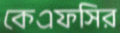
কেএফসির